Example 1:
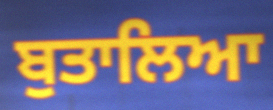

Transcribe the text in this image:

ਬੁਤਾਲਿਆ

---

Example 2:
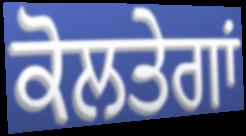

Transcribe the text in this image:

ਕੋਲਤੇਗਾਂ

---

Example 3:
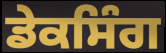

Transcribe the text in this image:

ਡੇਕਸਿੰਗ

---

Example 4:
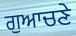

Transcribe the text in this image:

ਗੁਆਚਣੇ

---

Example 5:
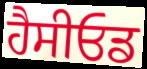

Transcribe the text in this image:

ਹੈਸੀਓਡ